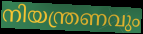
നിയന്ത്രണവും